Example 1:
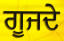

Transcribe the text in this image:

ਗੂਜਦੇ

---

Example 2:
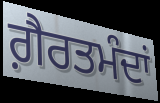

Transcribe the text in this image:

ਗ਼ੈਰਤਮੰਦਾਂ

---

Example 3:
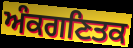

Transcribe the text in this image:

ਅੰਕਗਣਿਤਕ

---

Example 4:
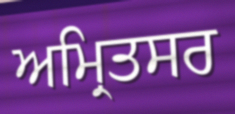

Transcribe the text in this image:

ਅਮ੍ਰਿਤਸਰ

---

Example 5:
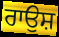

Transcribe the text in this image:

ਰਾਉਸ਼